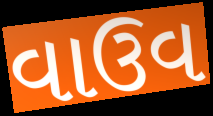
વાઉવ